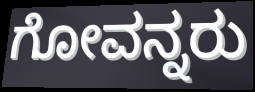
ಗೋವನ್ನರು